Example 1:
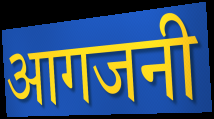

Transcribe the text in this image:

आगजनी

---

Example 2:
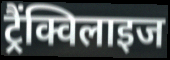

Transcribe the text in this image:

ट्रैंक्विलाइज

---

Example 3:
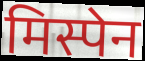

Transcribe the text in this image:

मिस्पेन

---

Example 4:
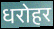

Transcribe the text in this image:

धरोहर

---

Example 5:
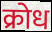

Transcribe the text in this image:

क्रोध